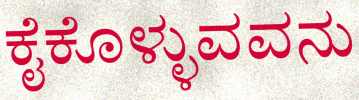
ಕೈಕೊಳ್ಳುವವನು